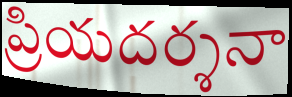
ప్రియదర్శనా